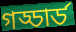
গড্ডার্ড